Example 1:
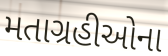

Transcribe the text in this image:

મતાગ્રહીઓના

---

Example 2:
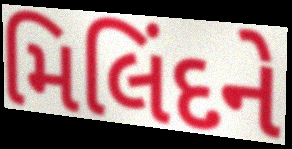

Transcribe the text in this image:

મિલિંદને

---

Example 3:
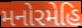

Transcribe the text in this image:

મનોરમેહિ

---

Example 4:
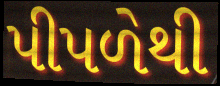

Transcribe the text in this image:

પીપળેથી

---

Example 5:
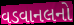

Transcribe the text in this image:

વડવાનલનો